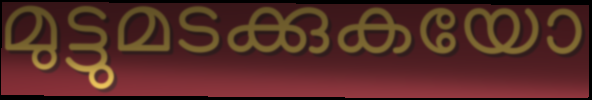
മുട്ടുമടക്കുകയോ